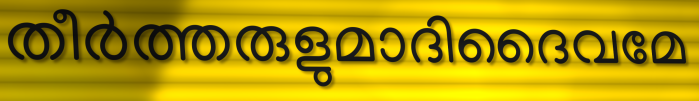
തീർത്തരുളുമാദിദൈവമേ